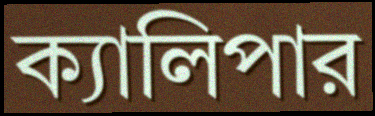
ক্যালিপার